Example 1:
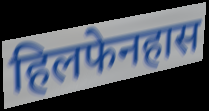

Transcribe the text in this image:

हिलफेनहास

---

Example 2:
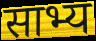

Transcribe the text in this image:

साभ्य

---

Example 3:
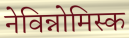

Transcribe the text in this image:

नेविन्नोमिस्क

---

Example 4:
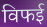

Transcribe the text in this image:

विफई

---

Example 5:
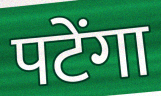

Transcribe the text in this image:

पटेंगा